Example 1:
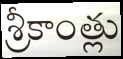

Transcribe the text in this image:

శ్రీకాంత్లు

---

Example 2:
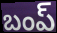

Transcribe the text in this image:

బంప్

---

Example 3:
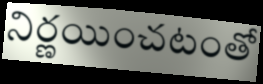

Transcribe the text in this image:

నిర్ణయించటంతో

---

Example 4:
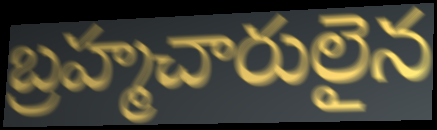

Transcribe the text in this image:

బ్రహ్మచారులైన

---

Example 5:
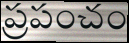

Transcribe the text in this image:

ప్రపంచం